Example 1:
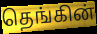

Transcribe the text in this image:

தெங்கின்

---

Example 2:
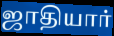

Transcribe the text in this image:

ஜாதியார்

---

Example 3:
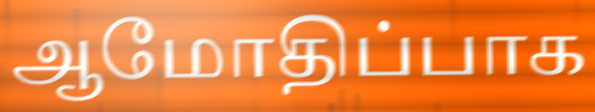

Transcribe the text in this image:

ஆமோதிப்பாக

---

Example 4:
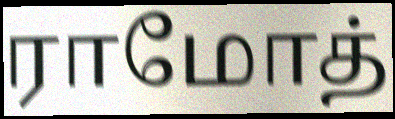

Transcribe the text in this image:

ராமோத்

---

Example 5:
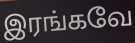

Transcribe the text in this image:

இரங்கவே